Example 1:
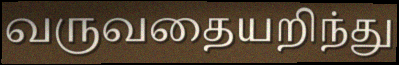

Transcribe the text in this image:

வருவதையறிந்து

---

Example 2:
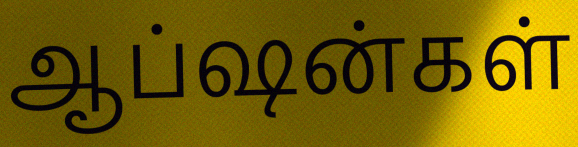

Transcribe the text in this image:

ஆப்ஷன்கள்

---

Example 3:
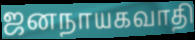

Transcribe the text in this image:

ஜனநாயகவாதி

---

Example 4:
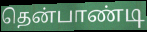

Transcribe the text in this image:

தென்பாண்டி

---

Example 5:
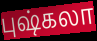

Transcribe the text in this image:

புஷ்கலா